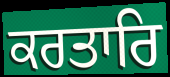
ਕਰਤਾਰਿ